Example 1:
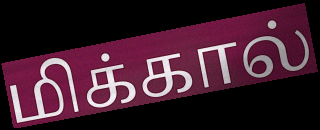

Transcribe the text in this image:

மிக்கால்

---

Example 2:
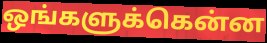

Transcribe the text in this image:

ஒங்களுக்கென்ன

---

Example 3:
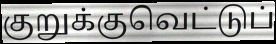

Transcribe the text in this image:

குறுக்குவெட்டுப்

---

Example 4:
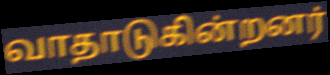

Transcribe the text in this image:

வாதாடுகின்றனர்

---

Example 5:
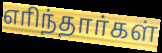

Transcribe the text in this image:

எரிந்தார்கள்